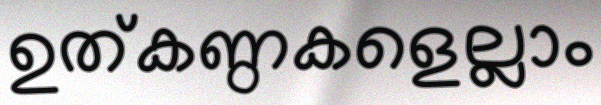
ഉത്കണ്ഠകളെല്ലാം